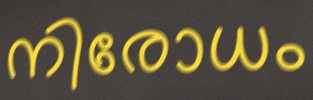
നിരോധം